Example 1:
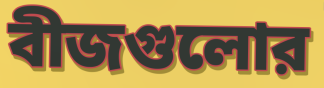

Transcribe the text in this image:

বীজগুলোর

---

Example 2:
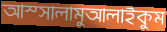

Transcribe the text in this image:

আস্সালামুআলাইকুম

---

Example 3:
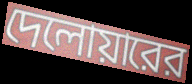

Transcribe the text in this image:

দেলোয়ারের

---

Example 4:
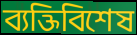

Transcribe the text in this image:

ব্যক্তিবিশেষ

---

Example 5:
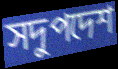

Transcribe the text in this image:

সদুপদেশ